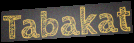
Tabakat